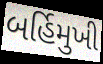
બર્હિમુખી